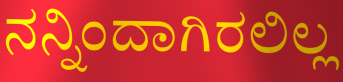
ನನ್ನಿಂದಾಗಿರಲಿಲ್ಲ